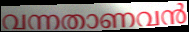
വന്നതാണവൻ